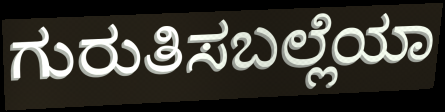
ಗುರುತಿಸಬಲ್ಲೆಯಾ